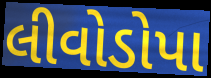
લીવોડોપા